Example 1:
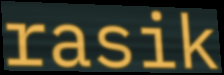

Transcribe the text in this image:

rasik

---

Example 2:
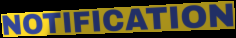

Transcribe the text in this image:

NOTIFICATION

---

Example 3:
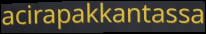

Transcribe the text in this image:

acirapakkantassa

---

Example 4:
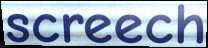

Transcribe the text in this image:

screech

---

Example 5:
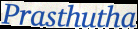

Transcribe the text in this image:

Prasthutha